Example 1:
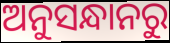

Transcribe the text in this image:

ଅନୁସନ୍ଧାନରୁ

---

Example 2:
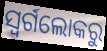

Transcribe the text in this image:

ସ୍ଵର୍ଗଲୋକରୁ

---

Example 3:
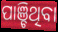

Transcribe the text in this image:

ପାଞ୍ଚିଥିବା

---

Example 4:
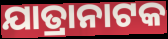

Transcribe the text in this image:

ଯାତ୍ରାନାଟକ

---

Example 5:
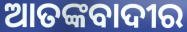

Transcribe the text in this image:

ଆତଙ୍କବାଦୀର